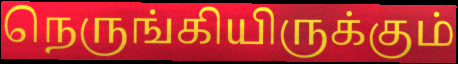
நெருங்கியிருக்கும்